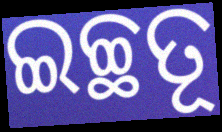
ଇଚ୍ଛତୂ